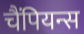
चैंपियन्स